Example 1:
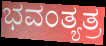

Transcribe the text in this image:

ಭವಂತ್ಯತ್ರ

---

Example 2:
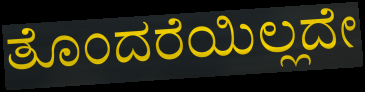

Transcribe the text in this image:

ತೊಂದರೆಯಿಲ್ಲದೇ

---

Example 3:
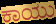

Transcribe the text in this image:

ಕಾಯು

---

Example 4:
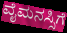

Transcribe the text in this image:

ವೈಮನಸ್ಸಿಗೆ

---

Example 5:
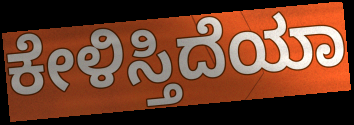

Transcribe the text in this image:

ಕೇಳಿಸ್ತಿದೆಯಾ